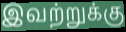
இவற்றுக்கு